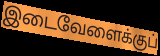
இடைவேளைக்குப்